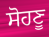
ਸੋਹਣੂ